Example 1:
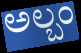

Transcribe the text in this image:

ಅಲ್ಬಂ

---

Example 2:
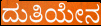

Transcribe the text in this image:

ದುತಿಯೇನ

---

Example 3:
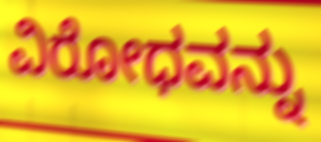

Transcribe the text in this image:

ವಿರೋಧವನ್ನು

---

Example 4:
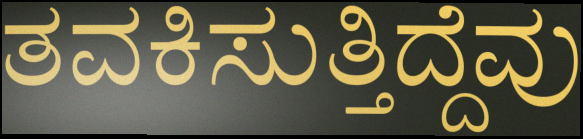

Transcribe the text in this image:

ತವಕಿಸುತ್ತಿದ್ದೆವು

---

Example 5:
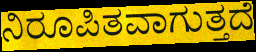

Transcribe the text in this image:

ನಿರೂಪಿತವಾಗುತ್ತದೆ